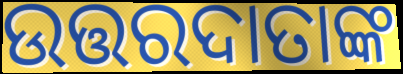
ଉତ୍ତରଦାତାଙ୍କ